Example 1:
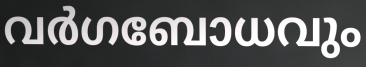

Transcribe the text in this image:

വർഗബോധവും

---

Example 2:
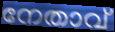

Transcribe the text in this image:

നേതാവ്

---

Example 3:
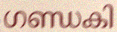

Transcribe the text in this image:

ഗണ്ഡകി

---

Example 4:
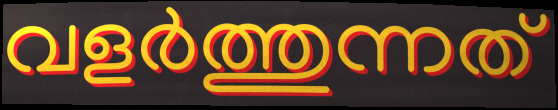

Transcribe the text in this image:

വളർത്തുന്നത്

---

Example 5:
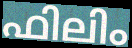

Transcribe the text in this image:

ഫിലിം